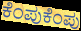
ಕೆಂಪುಕೆಂಪು